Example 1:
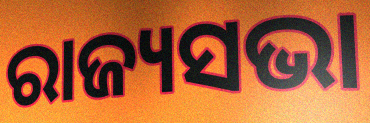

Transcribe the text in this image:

ରାଜ୍ୟସଭା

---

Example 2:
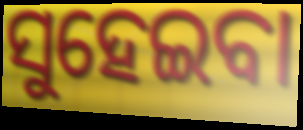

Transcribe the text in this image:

ସୁହେଇବା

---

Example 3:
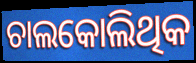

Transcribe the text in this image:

ଚାଲକୋଲିଥିକ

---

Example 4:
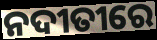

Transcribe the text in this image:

ନଦୀତୀରେ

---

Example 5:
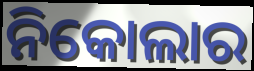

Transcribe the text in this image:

ନିକୋଲାର